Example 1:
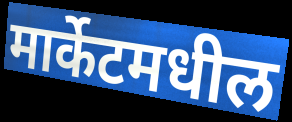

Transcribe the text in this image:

मार्केटमधील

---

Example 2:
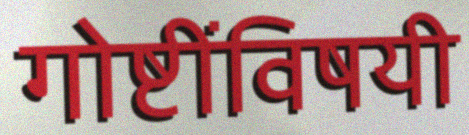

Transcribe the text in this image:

गोष्टींविषयी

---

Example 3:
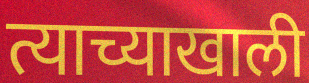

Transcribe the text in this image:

त्याच्याखाली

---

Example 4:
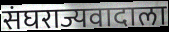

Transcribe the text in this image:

संघराज्यवादाला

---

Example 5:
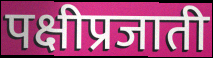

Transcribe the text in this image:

पक्षीप्रजाती